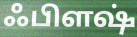
ஃபிளஷ்